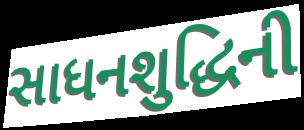
સાધનશુદ્ધિની